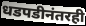
धडपडीनंतरही